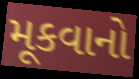
મૂકવાનો